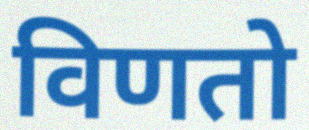
विणतो